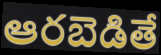
ఆరబెడితే